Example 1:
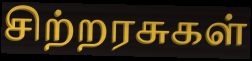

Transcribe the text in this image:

சிற்றரசுகள்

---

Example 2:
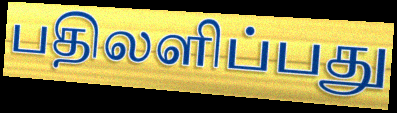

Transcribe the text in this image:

பதிலளிப்பது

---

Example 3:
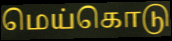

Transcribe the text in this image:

மெய்கொடு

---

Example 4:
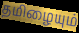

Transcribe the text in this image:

தமிழையும்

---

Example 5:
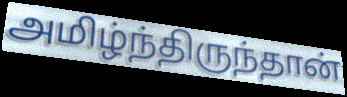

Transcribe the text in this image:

அமிழ்ந்திருந்தான்